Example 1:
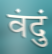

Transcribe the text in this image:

वंदुं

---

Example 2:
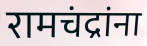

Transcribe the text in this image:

रामचंद्रांना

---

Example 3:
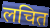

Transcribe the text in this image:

लचित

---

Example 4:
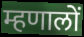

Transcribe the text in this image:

म्हणालों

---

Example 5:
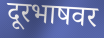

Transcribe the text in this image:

दूरभाषवर